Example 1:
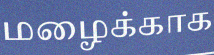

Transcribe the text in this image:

மழைக்காக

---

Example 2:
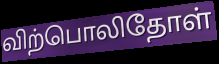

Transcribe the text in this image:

விற்பொலிதோள்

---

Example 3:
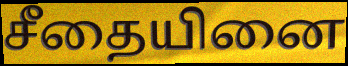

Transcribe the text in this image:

சீதையினை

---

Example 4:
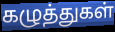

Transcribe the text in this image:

கழுத்துகள்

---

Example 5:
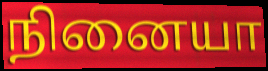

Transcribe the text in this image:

நினையா